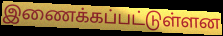
இணைக்கப்பட்டுள்ளன